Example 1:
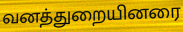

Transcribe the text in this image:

வனத்துறையினரை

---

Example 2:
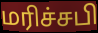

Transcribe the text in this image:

மரிச்சபி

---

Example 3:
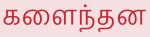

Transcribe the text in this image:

களைந்தன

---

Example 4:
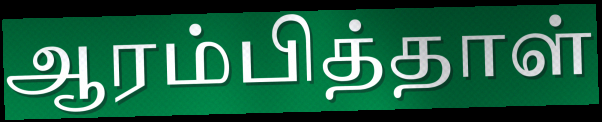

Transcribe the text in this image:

ஆரம்பித்தாள்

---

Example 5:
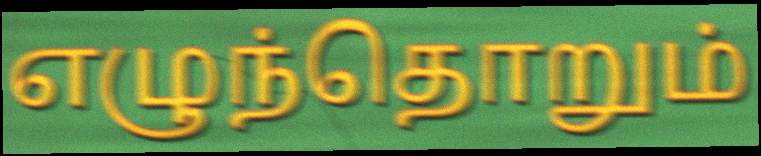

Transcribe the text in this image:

எழுந்தொறும்